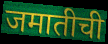
जमातीची